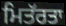
ਮਿਤੱਰਤਾ